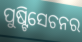
ପୁଷ୍ଟିସେଚନର